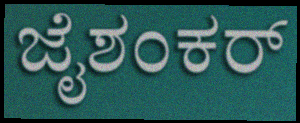
ಜೈಶಂಕರ್